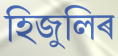
হিজুলিৰ